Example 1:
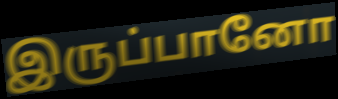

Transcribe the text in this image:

இருப்பானோ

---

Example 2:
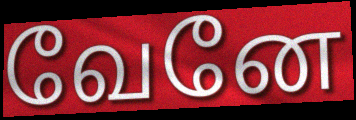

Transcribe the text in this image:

வேனே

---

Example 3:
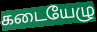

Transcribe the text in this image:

கடையேழு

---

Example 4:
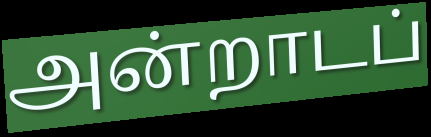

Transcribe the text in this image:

அன்றாடப்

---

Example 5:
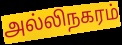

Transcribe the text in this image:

அல்லிநகரம்